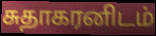
சுதாகரனிடம்